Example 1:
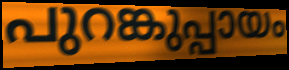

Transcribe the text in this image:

പുറങ്കുപ്പായം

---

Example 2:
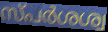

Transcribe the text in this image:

സ്പർശശ്വ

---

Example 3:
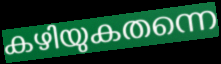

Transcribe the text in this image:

കഴിയുകതന്നെ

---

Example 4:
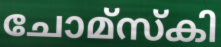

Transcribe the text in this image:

ചോമ്സ്കി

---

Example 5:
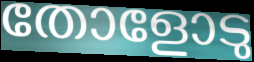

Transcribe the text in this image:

തോളോടു